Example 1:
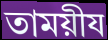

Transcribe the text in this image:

তাময়ীয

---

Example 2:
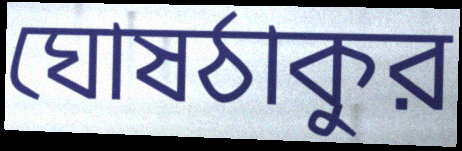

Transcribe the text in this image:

ঘোষঠাকুর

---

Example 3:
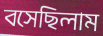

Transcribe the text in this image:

বসেছিলাম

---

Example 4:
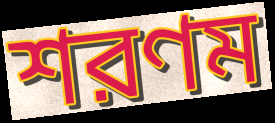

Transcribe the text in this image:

শরণম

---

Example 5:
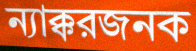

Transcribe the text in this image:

ন্যাক্করজনক